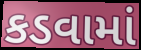
કડવામાં